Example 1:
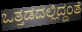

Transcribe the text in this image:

ಒತ್ತಡದಲ್ಲಿದ್ದಂತೆ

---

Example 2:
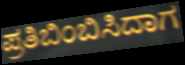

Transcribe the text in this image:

ಪ್ರತಿಬಿಂಬಿಸಿದಾಗ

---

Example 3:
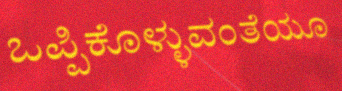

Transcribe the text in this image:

ಒಪ್ಪಿಕೊಳ್ಳುವಂತೆಯೂ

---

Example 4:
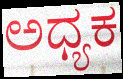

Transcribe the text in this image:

ಅಧ್ಯಕ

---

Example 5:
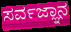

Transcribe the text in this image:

ಸರ್ವಜ್ಞಾನ